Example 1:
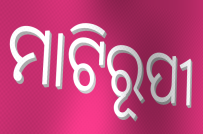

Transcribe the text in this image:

ମାଟିରୂପୀ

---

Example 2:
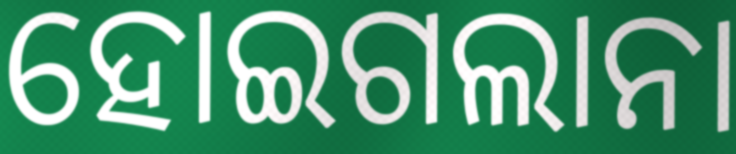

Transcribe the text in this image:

ହୋଇଗଲାନା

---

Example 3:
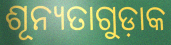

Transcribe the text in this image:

ଶୂନ୍ୟତାଗୁଡ଼ାକ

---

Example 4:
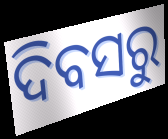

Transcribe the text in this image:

ଦିବସରୁ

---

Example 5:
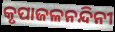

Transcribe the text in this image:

କୃପାଜଳନନ୍ଦିନୀ